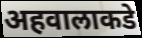
अहवालाकडे